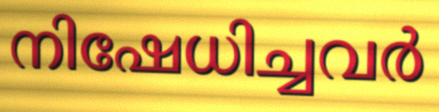
നിഷേധിച്ചവർ